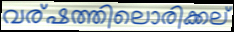
വര്ഷത്തിലൊരിക്കല്